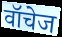
वॉचेज